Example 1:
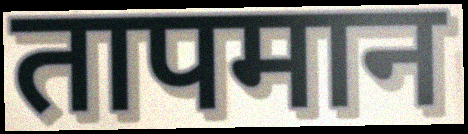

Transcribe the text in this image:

तापमान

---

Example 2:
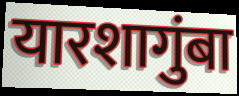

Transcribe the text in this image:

यारशागुंबा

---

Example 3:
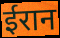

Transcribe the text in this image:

ईरान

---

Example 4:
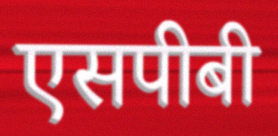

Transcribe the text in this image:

एसपीबी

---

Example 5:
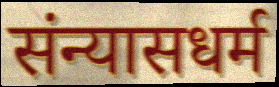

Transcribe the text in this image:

संन्यासधर्म